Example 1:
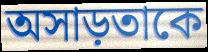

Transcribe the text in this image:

অসাড়তাকে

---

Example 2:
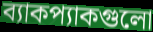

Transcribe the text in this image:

ব্যাকপ্যাকগুলো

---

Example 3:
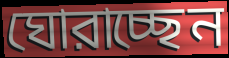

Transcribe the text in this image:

ঘোরাচ্ছেন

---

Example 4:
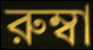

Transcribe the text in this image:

রুম্বা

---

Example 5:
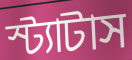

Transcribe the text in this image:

স্ট্যাটাস